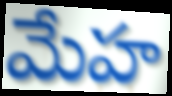
మేహ